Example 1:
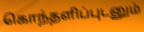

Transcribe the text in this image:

கொந்தளிப்புடனும்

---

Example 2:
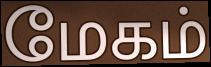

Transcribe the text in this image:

மேகம்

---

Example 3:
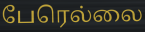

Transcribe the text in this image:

பேரெல்லை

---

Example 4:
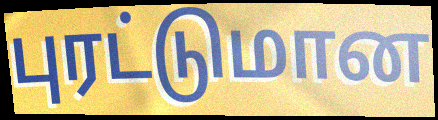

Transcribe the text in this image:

புரட்டுமான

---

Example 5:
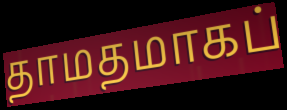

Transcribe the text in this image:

தாமதமாகப்